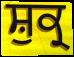
ਸ਼ੁਕ੍ਰ